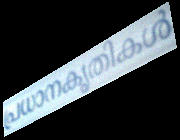
പ്രധാനകൃതികൾ